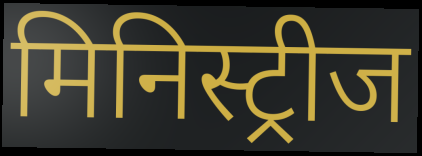
मिनिस्ट्रीज